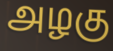
அழகு